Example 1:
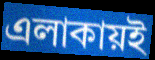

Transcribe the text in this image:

এলাকায়ই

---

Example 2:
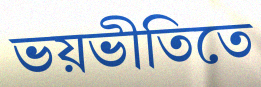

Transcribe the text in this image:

ভয়ভীতিতে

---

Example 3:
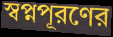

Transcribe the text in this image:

স্বপ্নপূরণের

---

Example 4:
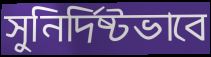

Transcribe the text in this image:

সুনির্দিষ্টভাবে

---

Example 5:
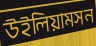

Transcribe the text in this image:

উইলিয়ামসন